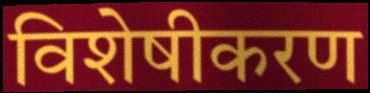
विशेषीकरण